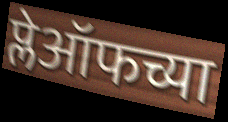
प्लेऑफच्या